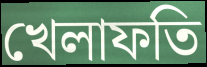
খেলাফতি